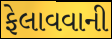
ફેલાવવાની